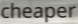
cheaper